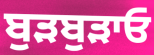
ਬੁੜਬੁੜਾਓ